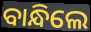
ବାନ୍ଧିଲେ